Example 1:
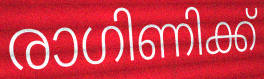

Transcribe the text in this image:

രാഗിണിക്ക്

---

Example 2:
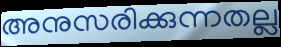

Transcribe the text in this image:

അനുസരിക്കുന്നതല്ല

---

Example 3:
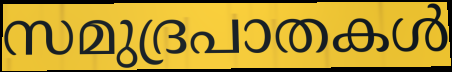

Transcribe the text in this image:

സമുദ്രപാതകൾ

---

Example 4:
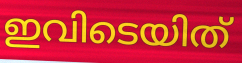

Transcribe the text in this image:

ഇവിടെയിത്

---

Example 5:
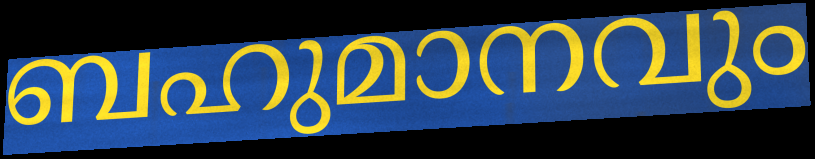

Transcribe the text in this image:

ബഹുമാനവും